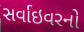
સર્વાઇવરનો